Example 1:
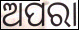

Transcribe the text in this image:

ଅପରା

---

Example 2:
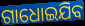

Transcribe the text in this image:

ଗାଧୋଇଯିବ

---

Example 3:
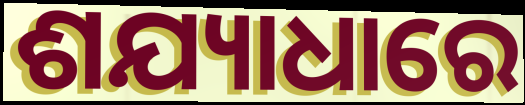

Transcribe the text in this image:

ଶଯ୍ୟାଧାରେ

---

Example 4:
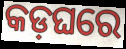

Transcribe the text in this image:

କଡ଼ଘରେ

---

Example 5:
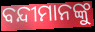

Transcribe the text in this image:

ବନ୍ଦୀମାନଙ୍କୁ